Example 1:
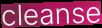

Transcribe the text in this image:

cleanse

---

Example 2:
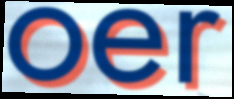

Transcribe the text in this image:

oer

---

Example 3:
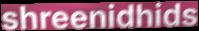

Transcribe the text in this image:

shreenidhids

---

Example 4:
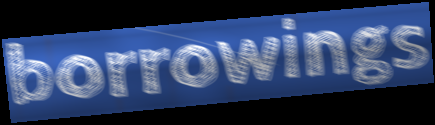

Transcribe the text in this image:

borrowings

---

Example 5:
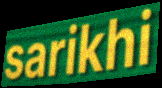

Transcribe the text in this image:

sarikhi